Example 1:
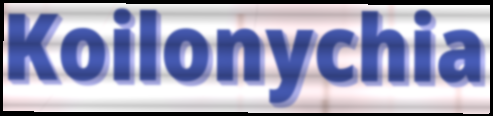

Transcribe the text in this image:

Koilonychia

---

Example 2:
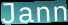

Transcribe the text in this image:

Jann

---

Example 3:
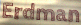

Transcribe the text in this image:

Erdman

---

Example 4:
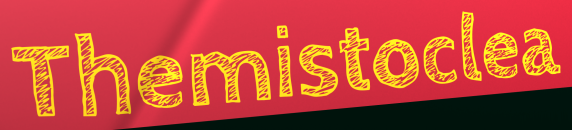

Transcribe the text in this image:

Themistoclea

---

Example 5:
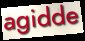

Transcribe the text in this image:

agidde